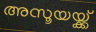
അസൂയയ്ക്ക്